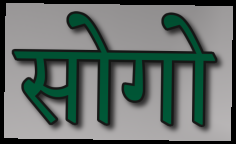
सोगो